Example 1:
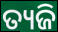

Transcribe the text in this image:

ତ୍ୟଜି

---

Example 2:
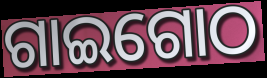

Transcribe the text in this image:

ଗାଇଗୋଠ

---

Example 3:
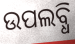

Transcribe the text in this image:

ଉପଲବ୍ଧି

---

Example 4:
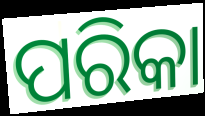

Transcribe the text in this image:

ପରିକା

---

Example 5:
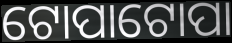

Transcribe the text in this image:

ଟୋପାଟୋପା